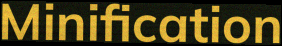
Minification